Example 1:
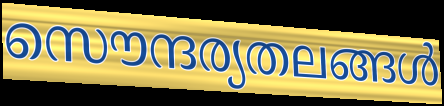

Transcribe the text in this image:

സൌന്ദര്യതലങ്ങൾ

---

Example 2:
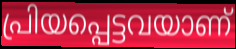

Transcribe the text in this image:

പ്രിയപ്പെട്ടവയാണ്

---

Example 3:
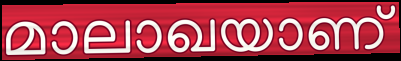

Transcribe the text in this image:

മാലാഖയാണ്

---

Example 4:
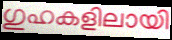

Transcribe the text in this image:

ഗുഹകളിലായി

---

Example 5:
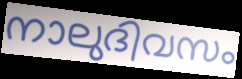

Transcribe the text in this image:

നാലുദിവസം